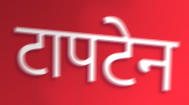
टापटेन